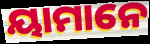
ୟାମାନେ